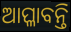
ଆପ୍ଳାବନ୍ତି